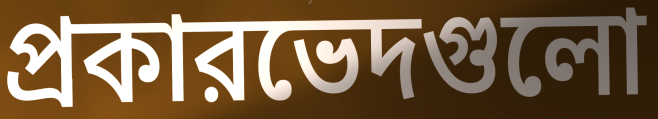
প্রকারভেদগুলো